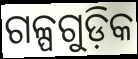
ଗଳ୍ପଗୁଡ଼ିକ